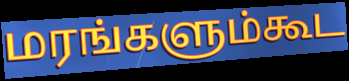
மரங்களும்கூட